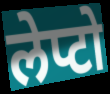
लेप्टो